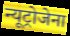
न्यूट्रोजेना